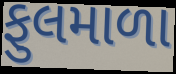
ફુલમાળા